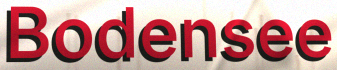
Bodensee